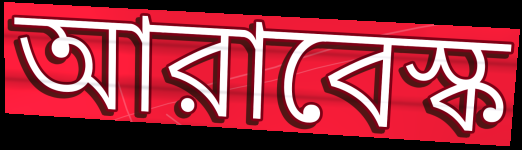
আরাবেস্ক